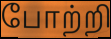
போற்றி